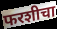
फरशीचा